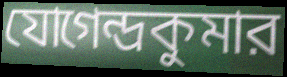
যোগেন্দ্রকুমার